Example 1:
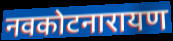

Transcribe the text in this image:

नवकोटनारायण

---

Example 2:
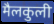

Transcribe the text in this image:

मैलकुली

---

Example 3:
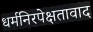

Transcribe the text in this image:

धर्मनिरपेक्षतावाद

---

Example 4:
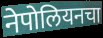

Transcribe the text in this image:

नेपोलियनचा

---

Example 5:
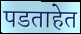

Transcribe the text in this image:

पडताहेत